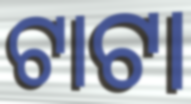
ଟାଟା